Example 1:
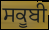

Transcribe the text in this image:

ਸਕੂਬੀ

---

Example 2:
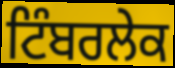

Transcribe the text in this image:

ਟਿੰਬਰਲੇਕ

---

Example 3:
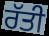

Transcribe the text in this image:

ਰੱਤੀ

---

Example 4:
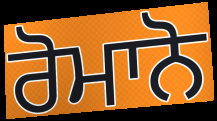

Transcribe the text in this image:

ਰੋਮਾਨੋ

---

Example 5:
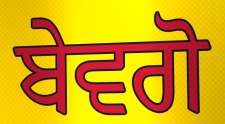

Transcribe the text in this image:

ਬੇਵਗੋ